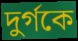
দুর্গকে